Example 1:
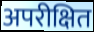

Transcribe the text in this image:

अपरीक्षित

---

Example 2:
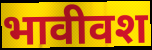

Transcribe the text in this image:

भावीवश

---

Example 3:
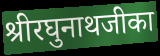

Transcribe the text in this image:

श्रीरघुनाथजीका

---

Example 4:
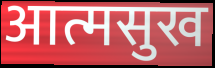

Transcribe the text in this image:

आत्मसुख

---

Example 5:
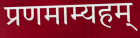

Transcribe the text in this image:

प्रणमाम्यहम्